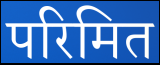
परिमित